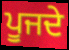
ਪੂਜਦੇ